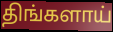
திங்களாய்